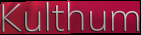
Kulthum